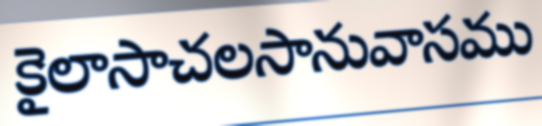
కైలాసాచలసానువాసము